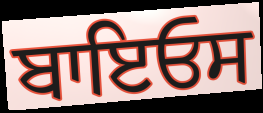
ਬਾਇਓਸ